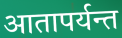
आतापर्यन्त